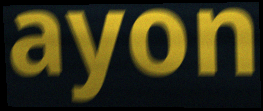
ayon